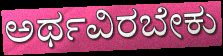
ಅರ್ಥವಿರಬೇಕು